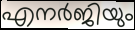
എനർജിയും